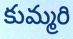
కుమ్మరి